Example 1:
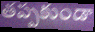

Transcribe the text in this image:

తప్పకుండా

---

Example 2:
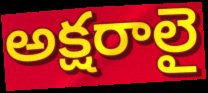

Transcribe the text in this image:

అక్షరాలై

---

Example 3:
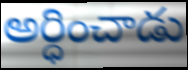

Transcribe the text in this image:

అర్ధించాడు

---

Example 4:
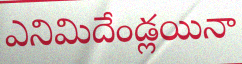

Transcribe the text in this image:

ఎనిమిదేండ్లయినా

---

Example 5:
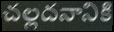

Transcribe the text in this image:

చల్లదనానికి